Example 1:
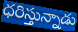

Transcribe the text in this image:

ధరిస్తున్నాడు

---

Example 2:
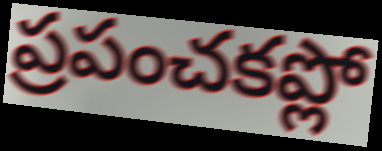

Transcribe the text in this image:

ప్రపంచకప్లో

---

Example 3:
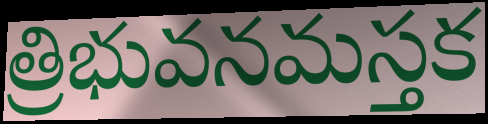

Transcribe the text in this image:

త్రిభువనమస్తక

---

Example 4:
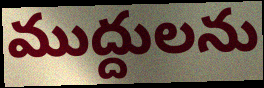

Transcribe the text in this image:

ముద్దులను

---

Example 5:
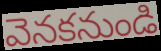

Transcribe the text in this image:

వెనకనుండి